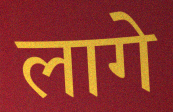
लागे